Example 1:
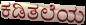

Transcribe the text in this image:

ಕಡಿತಲೆಯ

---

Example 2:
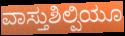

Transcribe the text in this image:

ವಾಸ್ತುಶಿಲ್ಪಿಯೂ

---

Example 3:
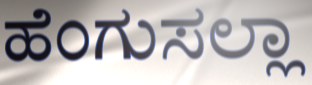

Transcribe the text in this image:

ಹೆಂಗುಸಲ್ಲಾ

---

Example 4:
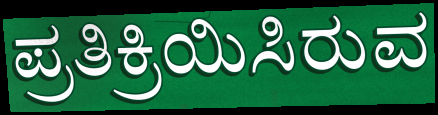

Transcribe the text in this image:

ಪ್ರತಿಕ್ರಿಯಿಸಿರುವ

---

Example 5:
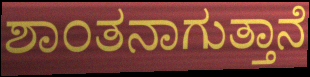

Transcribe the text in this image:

ಶಾಂತನಾಗುತ್ತಾನೆ